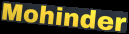
Mohinder